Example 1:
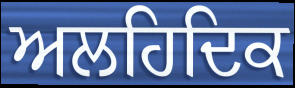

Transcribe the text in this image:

ਅਲਹਿਦਿਕ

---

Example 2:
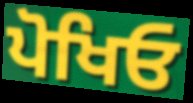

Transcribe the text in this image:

ਪੋਖਿਓ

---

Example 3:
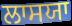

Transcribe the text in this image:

ਲਾਸਯਾ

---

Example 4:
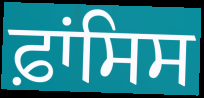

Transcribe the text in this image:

ਫ਼ਾਂਸਿਸ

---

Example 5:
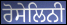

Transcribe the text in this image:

ਰੋਸੇਲਿਨੀ